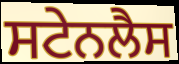
ਸਟੇਨਲੈਸ